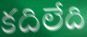
కదిలేది